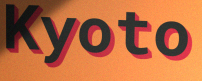
Kyoto